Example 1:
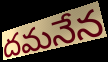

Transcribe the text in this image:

దమనేన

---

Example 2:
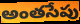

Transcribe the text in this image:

అంతసేపు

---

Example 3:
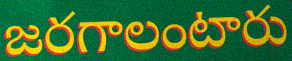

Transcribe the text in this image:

జరగాలంటారు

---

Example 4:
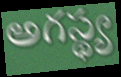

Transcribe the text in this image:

అగస్థ్య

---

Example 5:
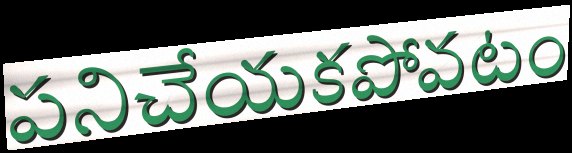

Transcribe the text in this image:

పనిచేయకపోవటం